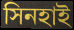
সিনহাই